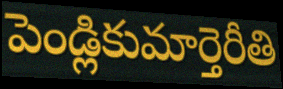
పెండ్లికుమార్తెరీతి